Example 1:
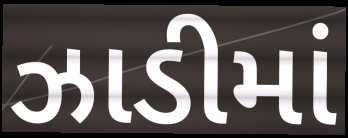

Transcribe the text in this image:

ઝાડીમાં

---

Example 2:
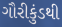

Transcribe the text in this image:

ગૌરીકુંડથી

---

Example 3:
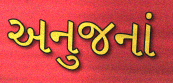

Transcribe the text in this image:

અનુજનાં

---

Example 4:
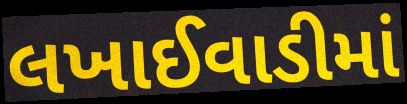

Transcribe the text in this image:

લખાઈવાડીમાં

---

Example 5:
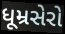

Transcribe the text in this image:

ધૂમ્રસેરો